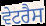
ਵੇਟਰੈਸ